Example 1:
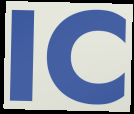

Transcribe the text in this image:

IC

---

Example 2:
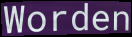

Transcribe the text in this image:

Worden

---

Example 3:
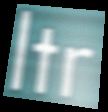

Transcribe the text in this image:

ltr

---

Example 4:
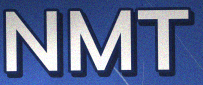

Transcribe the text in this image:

NMT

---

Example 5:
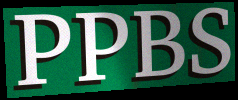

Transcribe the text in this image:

PPBS